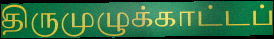
திருமுழுக்காட்டப்